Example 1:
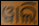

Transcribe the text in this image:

ୱାଲି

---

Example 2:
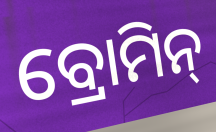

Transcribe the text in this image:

ବ୍ରୋମିନ୍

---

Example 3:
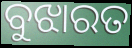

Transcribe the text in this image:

ବୁଝାରତ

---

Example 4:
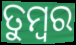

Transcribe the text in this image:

ତୁମ୍ବର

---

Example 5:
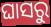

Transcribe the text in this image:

ଘାସରୁ